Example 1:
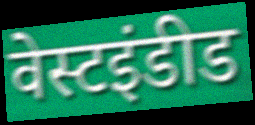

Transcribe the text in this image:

वेस्टइंडीड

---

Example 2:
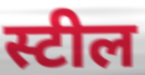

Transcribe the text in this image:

स्टील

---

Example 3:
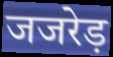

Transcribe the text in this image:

जजरेड़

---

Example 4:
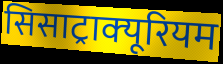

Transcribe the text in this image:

सिसाट्राक्यूरियम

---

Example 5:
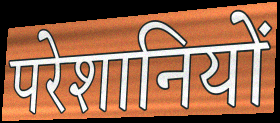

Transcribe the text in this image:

परेशानियों